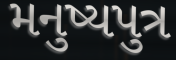
મનુષ્યપુત્ર